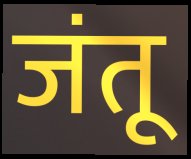
जंतू